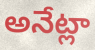
అనేట్లా